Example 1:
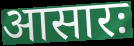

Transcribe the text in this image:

आसारः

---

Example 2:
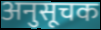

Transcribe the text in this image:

अनुसूचक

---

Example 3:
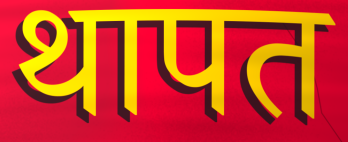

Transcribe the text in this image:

थापत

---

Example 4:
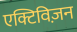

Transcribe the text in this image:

एक्टिविज़न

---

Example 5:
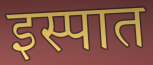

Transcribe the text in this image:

इस्पात